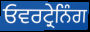
ਓਵਰਟ੍ਰੇਨਿੰਗ